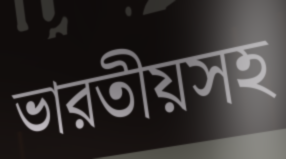
ভারতীয়সহ